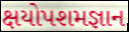
ક્ષયોપશમજ્ઞાન